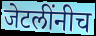
जेटलींनीच